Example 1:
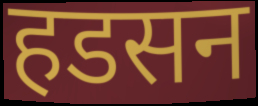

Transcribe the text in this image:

हडसन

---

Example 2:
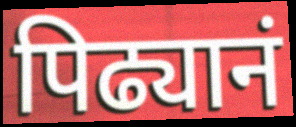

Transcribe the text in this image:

पिढ्यानं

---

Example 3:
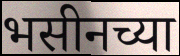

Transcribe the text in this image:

भसीनच्या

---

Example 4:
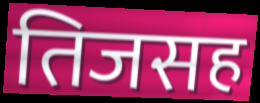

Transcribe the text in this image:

तिजसह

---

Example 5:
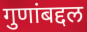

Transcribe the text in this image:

गुणांबद्दल